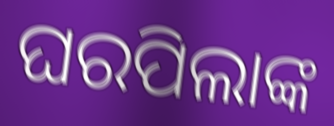
ଘରପିଲାଙ୍କ